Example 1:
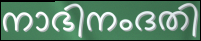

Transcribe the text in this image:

നാഭിനംദതി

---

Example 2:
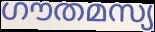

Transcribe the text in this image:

ഗൗതമസ്യ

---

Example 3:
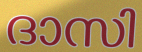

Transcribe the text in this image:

ദാസി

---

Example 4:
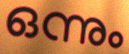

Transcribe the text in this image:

ഒന്നും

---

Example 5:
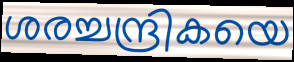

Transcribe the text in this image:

ശരച്ചന്ദ്രികയെ